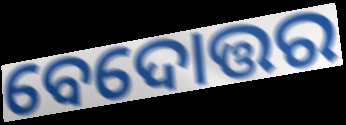
ବେଦୋତ୍ତର